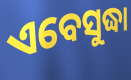
ଏବେସୁଦ୍ଧା